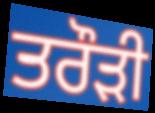
ਤਰੌੜੀ